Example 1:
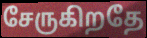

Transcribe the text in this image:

சேருகிறதே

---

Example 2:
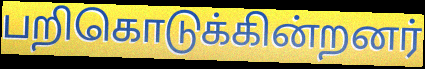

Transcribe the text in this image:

பறிகொடுக்கின்றனர்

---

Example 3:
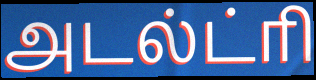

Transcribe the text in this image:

அடல்ட்ரி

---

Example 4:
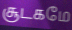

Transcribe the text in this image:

சூடகமே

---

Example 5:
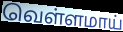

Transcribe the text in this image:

வெள்ளமாய்